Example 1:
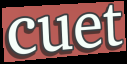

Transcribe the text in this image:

cuet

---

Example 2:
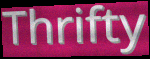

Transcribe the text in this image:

Thrifty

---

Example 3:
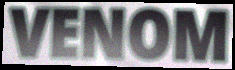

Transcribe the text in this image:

VENOM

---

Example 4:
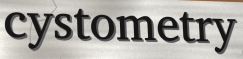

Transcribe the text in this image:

cystometry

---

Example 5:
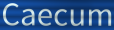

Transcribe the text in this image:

Caecum